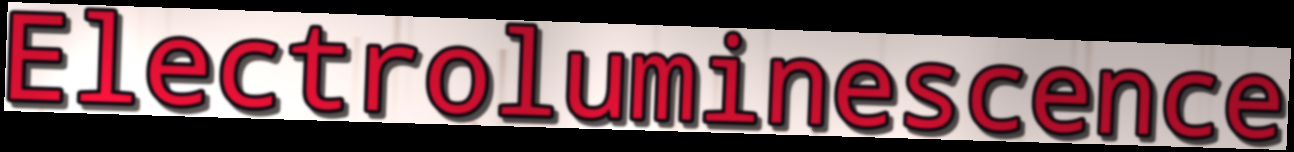
Electroluminescence